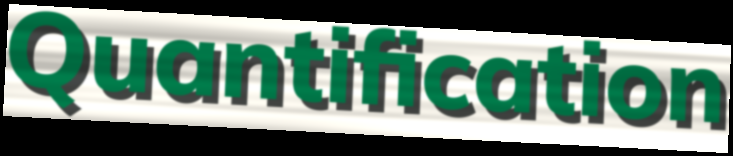
Quantification